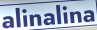
alinalina